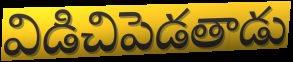
విడిచిపెడతాడు